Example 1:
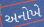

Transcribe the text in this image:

અનોખે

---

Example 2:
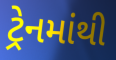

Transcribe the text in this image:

ટ્રેનમાંથી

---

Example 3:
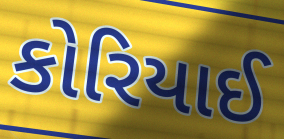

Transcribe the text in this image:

કોરિયાઈ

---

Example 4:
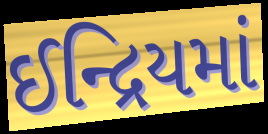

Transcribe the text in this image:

ઈન્દ્રિયમાં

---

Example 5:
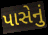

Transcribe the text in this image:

પાસેનું